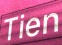
Tien